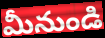
మీనుండి